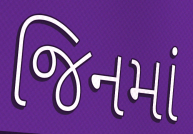
જિનમાં